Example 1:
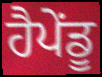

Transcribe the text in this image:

ਹੈਪੇਂਡੂ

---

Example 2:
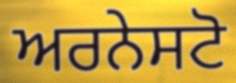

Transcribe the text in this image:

ਅਰਨੇਸਟੋ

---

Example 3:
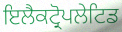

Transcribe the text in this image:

ਇਲੈਕਟ੍ਰੋਪਲੇਟਿਡ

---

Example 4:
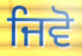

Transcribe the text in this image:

ਜਿਵੋ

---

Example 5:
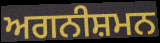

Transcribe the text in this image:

ਅਗਨੀਸ਼ਮਨ